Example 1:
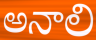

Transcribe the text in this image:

అనాలి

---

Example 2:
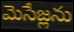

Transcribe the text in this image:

మెసేజ్లను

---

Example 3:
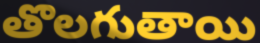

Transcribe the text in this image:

తొలగుతాయి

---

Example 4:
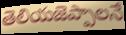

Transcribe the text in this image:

తెలియజెప్పాలనే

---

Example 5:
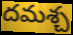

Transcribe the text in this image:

దమశ్చ